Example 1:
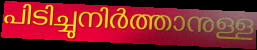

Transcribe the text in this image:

പിടിച്ചുനിർത്താനുള്ള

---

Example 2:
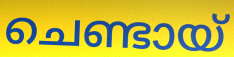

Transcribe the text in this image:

ചെണ്ടായ്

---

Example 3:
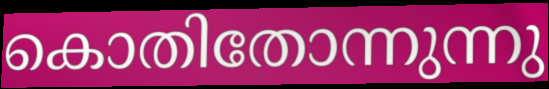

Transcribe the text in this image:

കൊതിതോന്നുന്നു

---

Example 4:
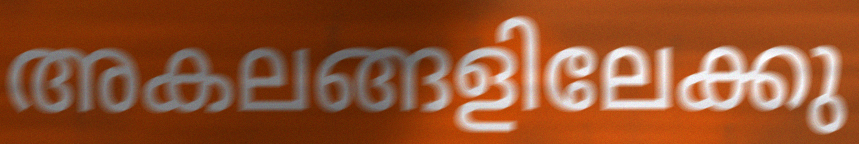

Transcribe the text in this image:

അകലങ്ങളിലേക്കു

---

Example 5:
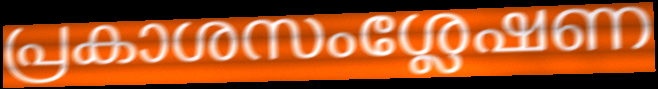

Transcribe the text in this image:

പ്രകാശസംശ്ലേഷണ